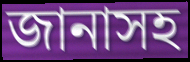
জানাসহ